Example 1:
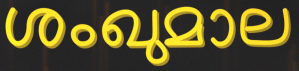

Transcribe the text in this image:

ശംഖുമാല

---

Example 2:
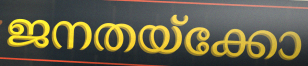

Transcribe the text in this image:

ജനതയ്ക്കോ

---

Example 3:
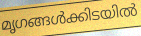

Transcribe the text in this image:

മൃഗങ്ങൾക്കിടയിൽ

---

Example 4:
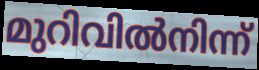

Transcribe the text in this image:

മുറിവിൽനിന്ന്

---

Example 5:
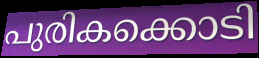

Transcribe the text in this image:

പുരികക്കൊടി